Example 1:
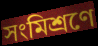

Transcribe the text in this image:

সংমিশ্রণে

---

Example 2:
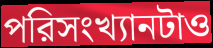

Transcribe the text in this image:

পরিসংখ্যানটাও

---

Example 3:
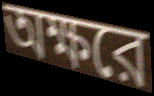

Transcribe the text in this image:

অক্ষরে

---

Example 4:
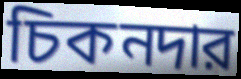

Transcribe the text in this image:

চিকনদার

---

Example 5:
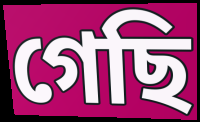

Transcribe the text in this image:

গেছি